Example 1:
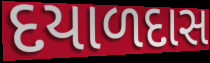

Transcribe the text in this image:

દયાળદાસ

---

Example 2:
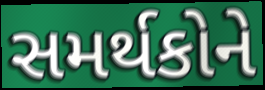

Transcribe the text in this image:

સમર્થકોને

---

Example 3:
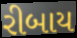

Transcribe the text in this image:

રીબાય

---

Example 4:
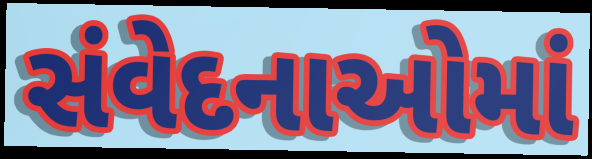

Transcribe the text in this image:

સંવેદનાઓમાં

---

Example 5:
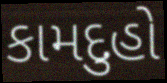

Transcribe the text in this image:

કામદુહો